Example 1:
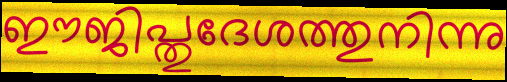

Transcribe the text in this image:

ഈജിപ്തുദേശത്തുനിന്നു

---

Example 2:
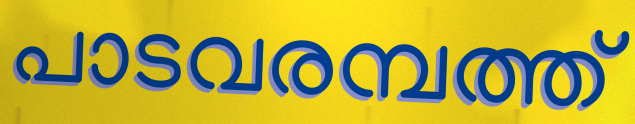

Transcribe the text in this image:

പാടവരമ്പത്ത്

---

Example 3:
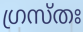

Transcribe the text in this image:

ഗ്രസ്തഃ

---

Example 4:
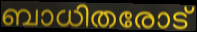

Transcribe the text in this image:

ബാധിതരോട്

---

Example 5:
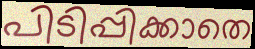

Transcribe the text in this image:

പിടിപ്പിക്കാതെ